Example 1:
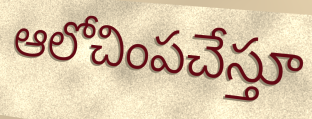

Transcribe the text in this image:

ఆలోచింపచేస్తూ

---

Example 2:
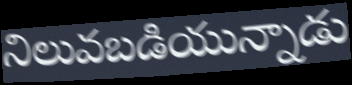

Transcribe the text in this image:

నిలువబడియున్నాడు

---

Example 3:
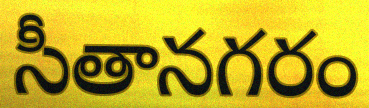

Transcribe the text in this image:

సీతానగరం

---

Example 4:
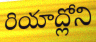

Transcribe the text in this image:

రియాద్లోని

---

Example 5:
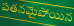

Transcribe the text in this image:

పతనమైపోయిన